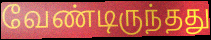
வேண்டிருந்தது